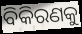
ବିକିରଣକୁ